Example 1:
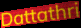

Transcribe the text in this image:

Dattathri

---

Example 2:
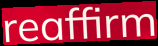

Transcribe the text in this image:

reaffirm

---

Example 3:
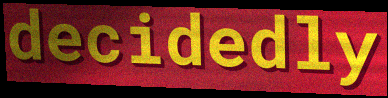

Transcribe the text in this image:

decidedly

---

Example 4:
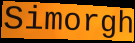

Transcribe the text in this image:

Simorgh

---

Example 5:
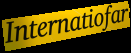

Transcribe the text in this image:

Internatiofar